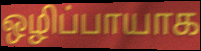
ஒழிப்பாயாக